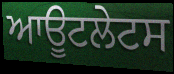
ਆਊਟਲੇਟਸ